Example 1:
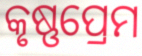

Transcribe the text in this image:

କୃଷ୍ଣପ୍ରେମ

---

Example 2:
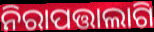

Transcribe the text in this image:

ନିରାପତ୍ତାଲାଗି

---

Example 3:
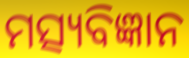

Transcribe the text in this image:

ମତ୍ସ୍ୟବିଜ୍ଞାନ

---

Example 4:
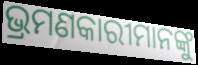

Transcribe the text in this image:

ଭ୍ରମଣକାରୀମାନଙ୍କୁ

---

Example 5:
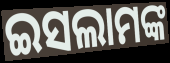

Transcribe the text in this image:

ଇସଲାମଙ୍କ